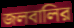
জলবালির